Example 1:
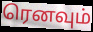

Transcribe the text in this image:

ரெனவும்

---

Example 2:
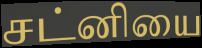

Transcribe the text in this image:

சட்னியை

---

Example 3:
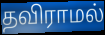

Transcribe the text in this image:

தவிராமல்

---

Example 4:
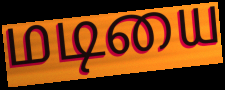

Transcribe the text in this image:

மடியை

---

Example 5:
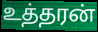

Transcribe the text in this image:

உத்தரன்